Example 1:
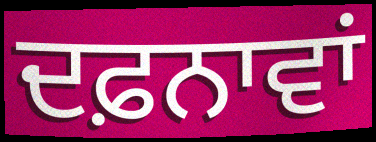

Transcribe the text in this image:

ਦਫ਼ਨਾਵਾਂ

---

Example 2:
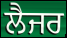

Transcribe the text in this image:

ਲੈਜਰ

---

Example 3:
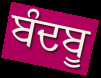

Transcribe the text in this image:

ਬੰਦਬੂ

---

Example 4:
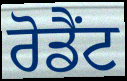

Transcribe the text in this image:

ਰੋਡੈਂਟ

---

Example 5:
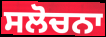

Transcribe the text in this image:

ਸਲੋਚਨਾ